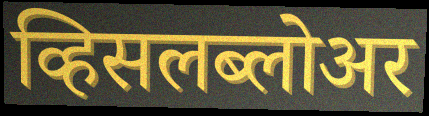
व्हिसलब्लोअर